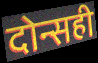
दोन्सही